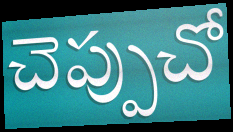
చెప్పుచో